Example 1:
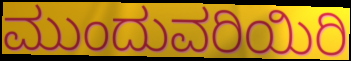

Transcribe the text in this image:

ಮುಂದುವರಿಯಿರಿ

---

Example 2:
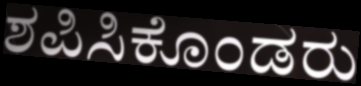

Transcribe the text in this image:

ಶಪಿಸಿಕೊಂಡರು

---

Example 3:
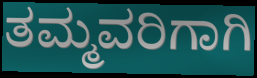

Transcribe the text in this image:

ತಮ್ಮವರಿಗಾಗಿ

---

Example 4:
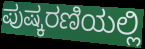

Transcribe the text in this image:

ಪುಷ್ಕರಣಿಯಲ್ಲಿ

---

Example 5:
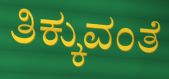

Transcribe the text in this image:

ತಿಕ್ಕುವಂತೆ